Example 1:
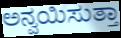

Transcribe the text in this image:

ಅನ್ವಯಿಸುತ್ತಾ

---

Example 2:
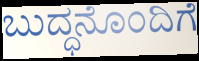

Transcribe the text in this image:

ಬುದ್ಧನೊಂದಿಗೆ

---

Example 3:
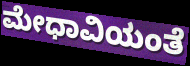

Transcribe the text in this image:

ಮೇಧಾವಿಯಂತೆ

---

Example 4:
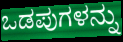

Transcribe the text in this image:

ಒಡಪುಗಳನ್ನು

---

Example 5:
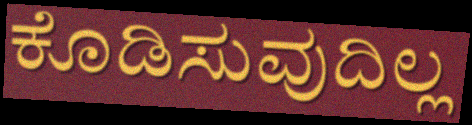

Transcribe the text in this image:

ಕೊಡಿಸುವುದಿಲ್ಲ